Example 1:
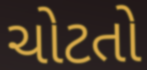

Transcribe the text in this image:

ચોટતો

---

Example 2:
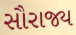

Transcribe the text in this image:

સૌરાજ્ય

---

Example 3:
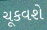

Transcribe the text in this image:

ચૂકવશે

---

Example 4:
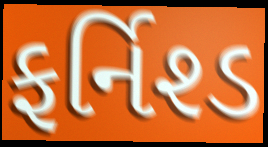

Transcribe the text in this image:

ફર્નિશ્ડ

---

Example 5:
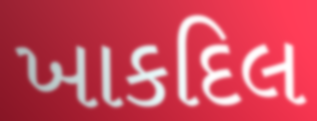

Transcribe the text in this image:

ખાકદિલ